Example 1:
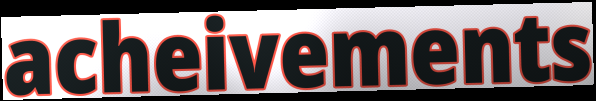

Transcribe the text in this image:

acheivements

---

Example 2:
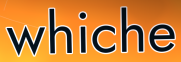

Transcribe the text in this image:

whiche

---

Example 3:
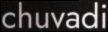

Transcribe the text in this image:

chuvadi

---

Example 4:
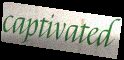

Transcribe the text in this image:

captivated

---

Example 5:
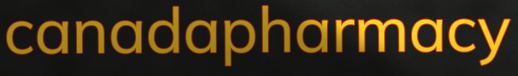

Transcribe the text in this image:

canadapharmacy